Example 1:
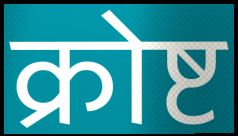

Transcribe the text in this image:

क्रोष्ट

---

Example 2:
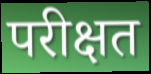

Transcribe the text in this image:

परीक्षत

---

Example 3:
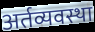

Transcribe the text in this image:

अर्तव्यवस्था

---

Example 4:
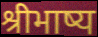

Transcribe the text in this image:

श्रीभाष्य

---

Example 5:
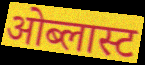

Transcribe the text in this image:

ओब्लास्ट